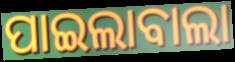
ପାଇଲାବାଲା